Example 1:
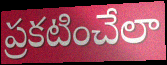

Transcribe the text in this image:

ప్రకటించేలా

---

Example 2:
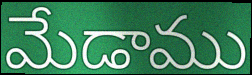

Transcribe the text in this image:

మేడాము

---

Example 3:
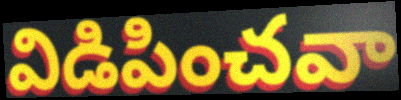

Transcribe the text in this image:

విడిపించవా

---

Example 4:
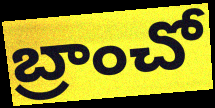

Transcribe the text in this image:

బ్రాంచో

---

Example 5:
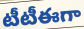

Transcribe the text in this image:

టీటీఈగా